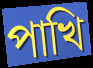
পাখি